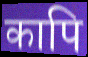
कापि